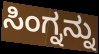
ಸಿಂಗ್ನನ್ನು